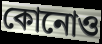
কোনোও